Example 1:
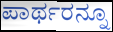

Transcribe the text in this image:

ಪಾರ್ಥರನ್ನೂ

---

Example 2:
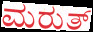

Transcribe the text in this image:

ಮರುತ್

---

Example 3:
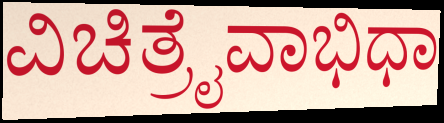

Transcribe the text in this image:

ವಿಚಿತ್ರೈವಾಭಿಧಾ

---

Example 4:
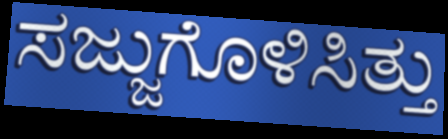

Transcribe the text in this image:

ಸಜ್ಜುಗೊಳಿಸಿತ್ತು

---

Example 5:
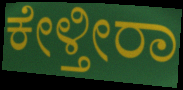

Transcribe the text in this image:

ಕೇಳ್ತೀರಾ